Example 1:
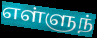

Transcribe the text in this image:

எள்ளுந்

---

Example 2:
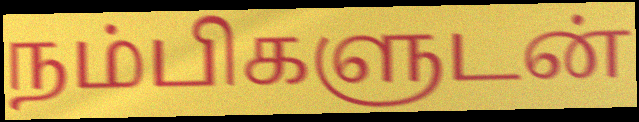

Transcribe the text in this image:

நம்பிகளுடன்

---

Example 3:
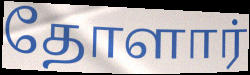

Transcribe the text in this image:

தோளார்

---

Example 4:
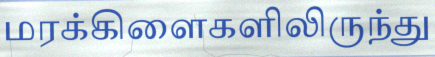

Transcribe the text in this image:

மரக்கிளைகளிலிருந்து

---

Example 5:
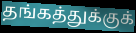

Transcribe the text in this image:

தங்கத்துக்குக்